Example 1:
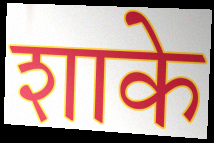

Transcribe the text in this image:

शाके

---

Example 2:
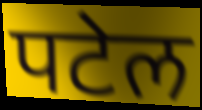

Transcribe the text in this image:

पटेल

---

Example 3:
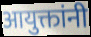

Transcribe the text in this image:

आयुक्तांनी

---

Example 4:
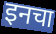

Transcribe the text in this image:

इनचा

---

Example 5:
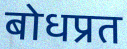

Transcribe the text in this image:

बोधप्रत